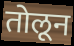
तोलून